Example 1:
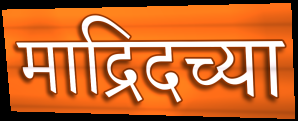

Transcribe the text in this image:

माद्रिदच्या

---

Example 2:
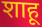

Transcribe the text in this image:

शाहू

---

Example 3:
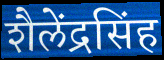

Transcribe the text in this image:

शैलेंद्रसिंह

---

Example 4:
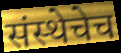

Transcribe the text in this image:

संस्थेचेच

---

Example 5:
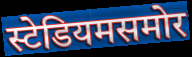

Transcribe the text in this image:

स्टेडियमसमोर